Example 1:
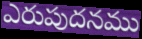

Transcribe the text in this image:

ఎరుపుదనము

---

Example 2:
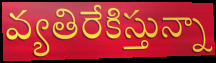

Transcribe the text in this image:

వ్యతిరేకిస్తున్నా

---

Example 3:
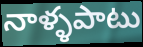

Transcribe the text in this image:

నాళ్ళపాటు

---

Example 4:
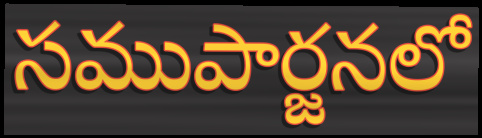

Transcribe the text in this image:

సముపార్జనలో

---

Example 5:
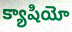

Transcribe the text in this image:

క్యాషియో